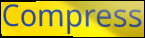
Compress